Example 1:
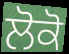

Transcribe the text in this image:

ਲੋਕੋ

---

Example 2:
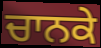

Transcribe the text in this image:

ਚਾਨਕੇ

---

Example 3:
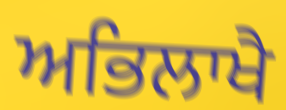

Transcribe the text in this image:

ਅਭਿਲਾਖੈ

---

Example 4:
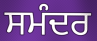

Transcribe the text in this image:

ਸਮੰਦਰ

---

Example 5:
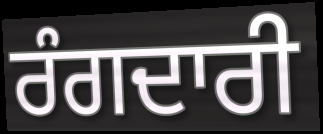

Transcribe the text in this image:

ਰੰਗਦਾਰੀ